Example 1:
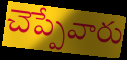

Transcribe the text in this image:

చెప్పేవారు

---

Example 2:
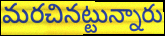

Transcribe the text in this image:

మరచినట్టున్నారు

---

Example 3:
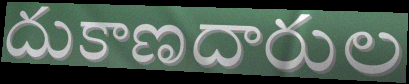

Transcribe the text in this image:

దుకాణదారుల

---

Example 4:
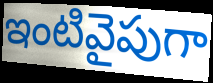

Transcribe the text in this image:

ఇంటివైపుగా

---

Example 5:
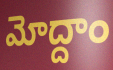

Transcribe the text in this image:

మోద్దాం